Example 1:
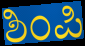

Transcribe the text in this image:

ಶಿಂಪಿ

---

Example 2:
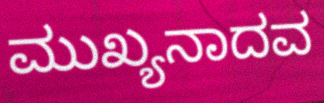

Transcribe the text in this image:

ಮುಖ್ಯನಾದವ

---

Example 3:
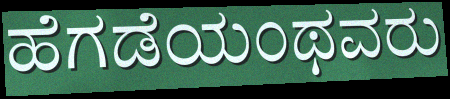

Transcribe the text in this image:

ಹೆಗಡೆಯಂಥವರು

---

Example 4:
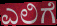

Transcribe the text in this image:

ಎಲಿಗೆ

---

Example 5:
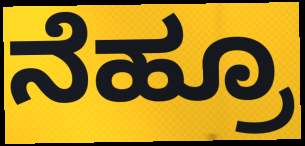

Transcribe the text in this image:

ನೆಹ್ರೂ